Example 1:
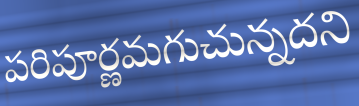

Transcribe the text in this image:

పరిపూర్ణమగుచున్నదని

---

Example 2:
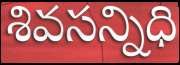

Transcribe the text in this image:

శివసన్నిధి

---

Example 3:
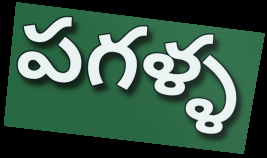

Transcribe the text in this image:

పగళ్ళ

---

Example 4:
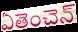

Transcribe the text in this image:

ఏతెంచెన్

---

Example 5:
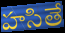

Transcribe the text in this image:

హసితే